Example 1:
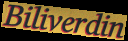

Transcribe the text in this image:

Biliverdin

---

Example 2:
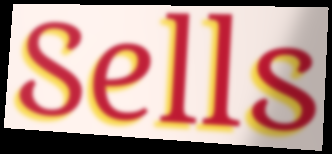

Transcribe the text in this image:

Sells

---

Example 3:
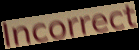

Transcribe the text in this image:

Incorrect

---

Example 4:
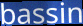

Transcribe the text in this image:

bassin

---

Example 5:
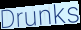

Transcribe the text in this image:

Drunks